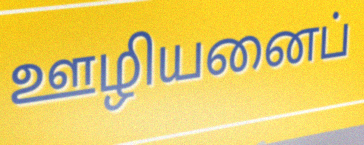
ஊழியனைப்